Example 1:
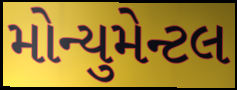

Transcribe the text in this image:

મોન્યુમેન્ટલ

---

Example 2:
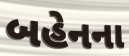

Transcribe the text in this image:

બહેનના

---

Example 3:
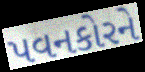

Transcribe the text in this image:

પવનકોરને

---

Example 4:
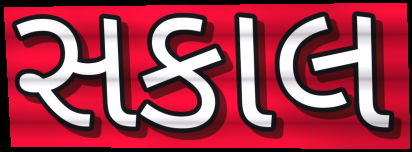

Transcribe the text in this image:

સકાલ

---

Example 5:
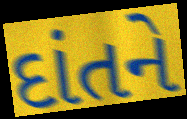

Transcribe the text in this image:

દાંતને